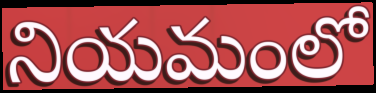
నియమంలో